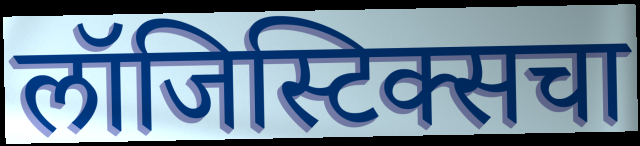
लॉजिस्टिक्सचा